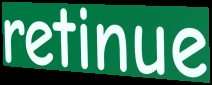
retinue